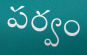
పర్వం